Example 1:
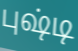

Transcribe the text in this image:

புஷ்டி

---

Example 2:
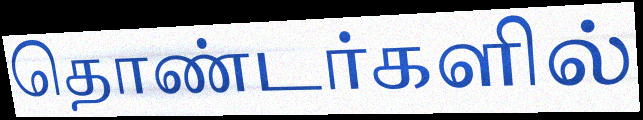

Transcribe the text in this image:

தொண்டர்களில்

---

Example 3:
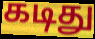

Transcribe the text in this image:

கடிது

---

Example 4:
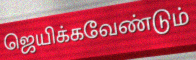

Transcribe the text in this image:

ஜெயிக்கவேண்டும்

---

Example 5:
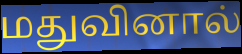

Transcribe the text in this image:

மதுவினால்